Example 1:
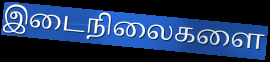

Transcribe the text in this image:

இடைநிலைகளை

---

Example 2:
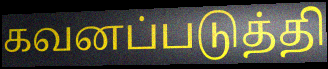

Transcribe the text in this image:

கவனப்படுத்தி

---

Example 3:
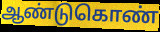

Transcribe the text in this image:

ஆண்டுகொண்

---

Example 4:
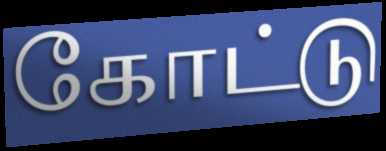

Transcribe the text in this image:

கோட்டு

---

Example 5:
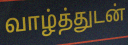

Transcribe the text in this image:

வாழ்த்துடன்